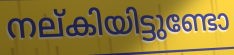
നല്കിയിട്ടുണ്ടോ